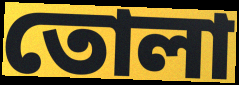
তোলা